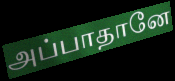
அப்பாதானே